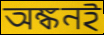
অঙ্কনই